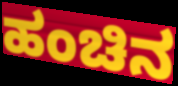
ಹಂಚಿನ